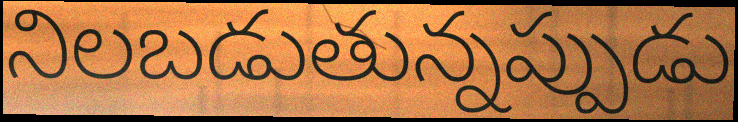
నిలబడుతున్నప్పుడు